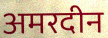
अमरदीन